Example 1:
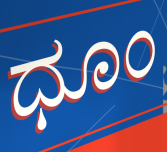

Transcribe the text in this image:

ಧೂಂ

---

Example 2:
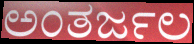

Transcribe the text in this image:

ಅಂತರ್ಜಲ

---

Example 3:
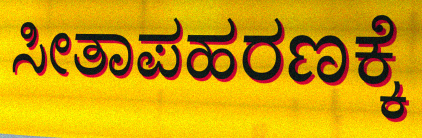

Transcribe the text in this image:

ಸೀತಾಪಹರಣಕ್ಕೆ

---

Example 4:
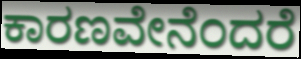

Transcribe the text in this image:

ಕಾರಣವೇನೆಂದರೆ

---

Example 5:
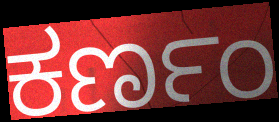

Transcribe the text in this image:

ಕರ್ಣಂ